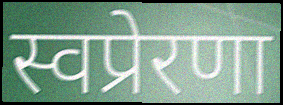
स्वप्रेरणा